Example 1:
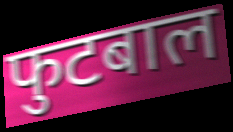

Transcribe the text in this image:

फुटबाल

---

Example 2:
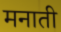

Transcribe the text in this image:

मनाती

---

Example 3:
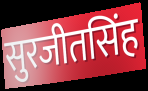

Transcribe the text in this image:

सुरजीतसिंह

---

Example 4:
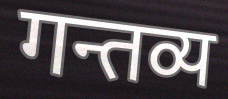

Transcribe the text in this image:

गन्तव्य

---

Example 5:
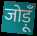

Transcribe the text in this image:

जोड़ूँ